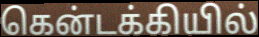
கென்டக்கியில்